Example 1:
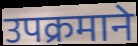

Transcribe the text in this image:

उपक्रमाने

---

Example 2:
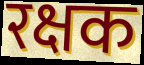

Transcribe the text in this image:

रक्षक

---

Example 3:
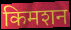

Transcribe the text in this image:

किमशन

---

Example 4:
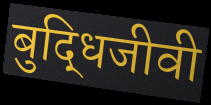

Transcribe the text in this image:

बुद्धिजीवी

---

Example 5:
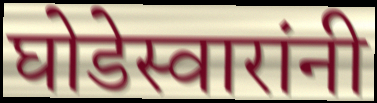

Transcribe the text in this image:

घोडेस्वारांनी